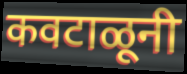
कवटाळूनी